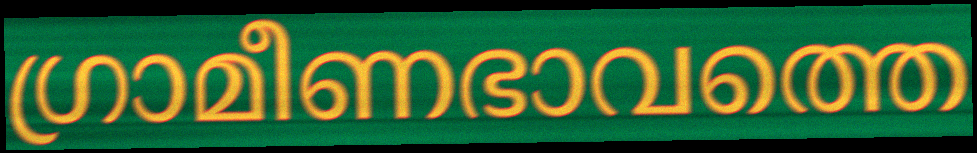
ഗ്രാമീണഭാവത്തെ